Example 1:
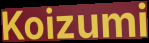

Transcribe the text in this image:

Koizumi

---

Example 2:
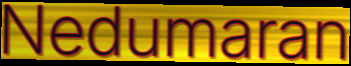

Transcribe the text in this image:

Nedumaran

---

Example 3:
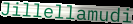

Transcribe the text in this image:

Jillellamudi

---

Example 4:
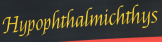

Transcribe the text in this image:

Hypophthalmichthys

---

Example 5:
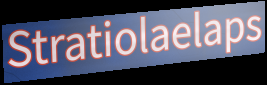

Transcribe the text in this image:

Stratiolaelaps